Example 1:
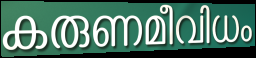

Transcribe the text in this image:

കരുണമീവിധം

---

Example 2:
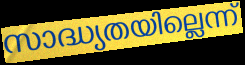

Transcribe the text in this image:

സാദ്ധ്യതയില്ലെന്ന്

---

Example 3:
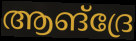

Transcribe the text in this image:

ആങ്ദ്രേ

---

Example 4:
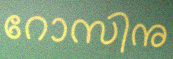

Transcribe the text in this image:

റോസിനു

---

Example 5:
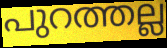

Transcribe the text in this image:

പുറത്തല്ല